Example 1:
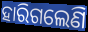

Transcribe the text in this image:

ହାରିଗଲେଣି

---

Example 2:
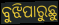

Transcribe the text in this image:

ବୁଝିପାରୁଛୁ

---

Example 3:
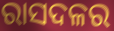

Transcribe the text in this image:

ରାସଦଳର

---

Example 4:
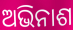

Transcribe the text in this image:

ଅଭିନାଶ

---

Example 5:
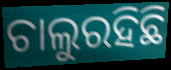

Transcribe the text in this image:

ଚାଲୁରହିଛି